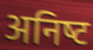
अनिष्‍ट